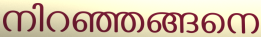
നിറഞ്ഞങ്ങനെ